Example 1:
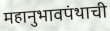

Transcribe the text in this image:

महानुभावपंथाची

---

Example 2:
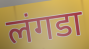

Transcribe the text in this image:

लंगडा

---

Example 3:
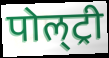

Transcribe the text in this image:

पोल्ट्री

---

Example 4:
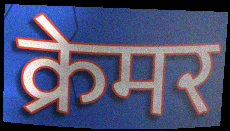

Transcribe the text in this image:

क्रेमर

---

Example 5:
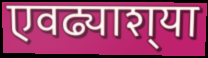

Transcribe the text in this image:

एवढ्याश्या